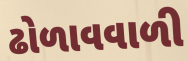
ઢોળાવવાળી